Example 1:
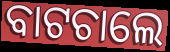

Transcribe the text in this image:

ବାଟଚାଲେ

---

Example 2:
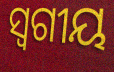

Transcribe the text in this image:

ସ୍ୱଗୀୟ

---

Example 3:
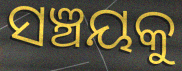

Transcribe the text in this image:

ସଞ୍ଚୟକୁ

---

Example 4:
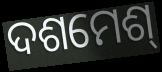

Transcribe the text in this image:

ଦଶମେଶ୍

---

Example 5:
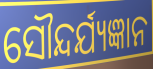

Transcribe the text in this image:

ସୌନ୍ଦର୍ଯ୍ୟଜ୍ଞାନ